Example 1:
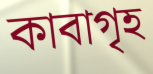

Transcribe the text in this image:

কাবাগৃহ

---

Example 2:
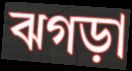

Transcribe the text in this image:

ঝগড়া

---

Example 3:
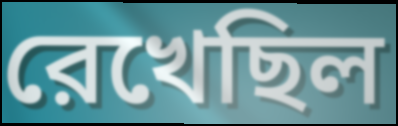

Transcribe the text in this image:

রেখেছিল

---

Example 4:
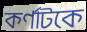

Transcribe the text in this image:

কর্ণাটকে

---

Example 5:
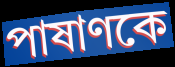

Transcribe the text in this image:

পাষাণকে